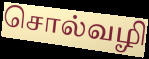
சொல்வழி